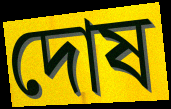
দোষ